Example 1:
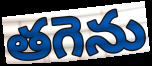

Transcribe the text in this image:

తగెను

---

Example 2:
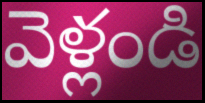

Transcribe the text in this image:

వెళ్లండి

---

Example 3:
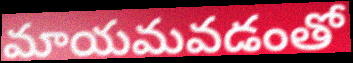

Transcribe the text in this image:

మాయమవడంతో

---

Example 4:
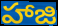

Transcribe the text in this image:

హాజి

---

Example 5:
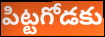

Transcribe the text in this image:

పిట్టగోడకు